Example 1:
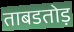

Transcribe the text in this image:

ताबडतोड़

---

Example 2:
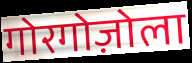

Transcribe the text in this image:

गोरगोज़ोला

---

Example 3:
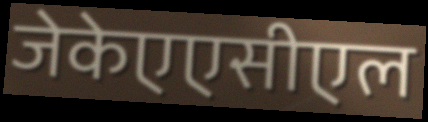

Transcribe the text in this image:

जेकेएएसीएल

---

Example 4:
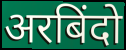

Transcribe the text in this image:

अरबिंदो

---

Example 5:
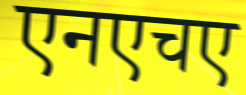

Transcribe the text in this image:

एनएचए